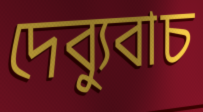
দেব্যুবাচ